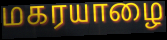
மகரயாழை